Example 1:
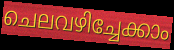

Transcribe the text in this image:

ചെലവഴിച്ചേക്കാം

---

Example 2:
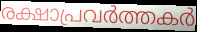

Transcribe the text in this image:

രക്ഷാപ്രവർത്തകർ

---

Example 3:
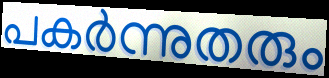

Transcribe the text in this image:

പകർന്നുതരും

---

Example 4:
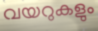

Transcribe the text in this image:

വയറുകളും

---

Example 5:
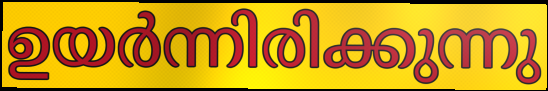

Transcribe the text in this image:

ഉയർന്നിരിക്കുന്നു